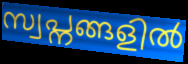
സ്വപ്നങ്ങളിൽ